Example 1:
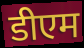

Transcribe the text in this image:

डीएम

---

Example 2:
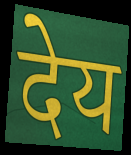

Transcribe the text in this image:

देय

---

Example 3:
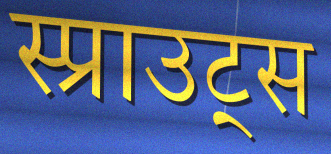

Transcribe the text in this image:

स्प्राउट्स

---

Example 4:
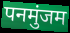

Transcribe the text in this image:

पनमुंजम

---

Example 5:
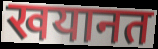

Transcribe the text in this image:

खयानत